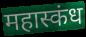
महास्कंध